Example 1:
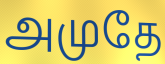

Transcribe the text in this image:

அமுதே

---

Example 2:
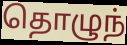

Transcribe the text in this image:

தொழுந்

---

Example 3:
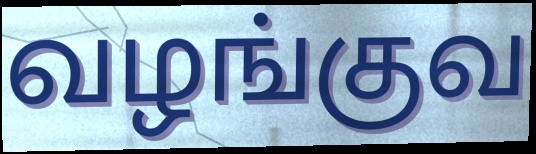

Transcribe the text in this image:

வழங்குவ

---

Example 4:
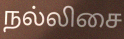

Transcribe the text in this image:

நல்லிசை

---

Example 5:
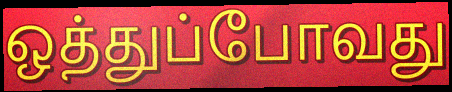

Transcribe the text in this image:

ஒத்துப்போவது